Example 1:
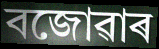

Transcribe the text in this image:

বজোৱাৰ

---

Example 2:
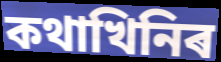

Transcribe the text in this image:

কথাখিনিৰ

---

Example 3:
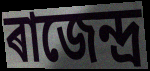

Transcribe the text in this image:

ৰাজেন্দ্ৰ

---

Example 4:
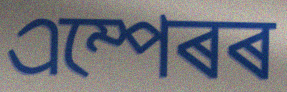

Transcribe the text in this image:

এম্পেৰৰ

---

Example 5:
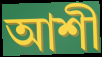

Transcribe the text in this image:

আশী